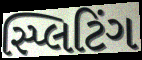
સ્પ્લિટિંગ